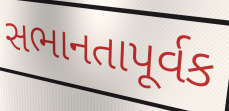
સભાનતાપૂર્વક